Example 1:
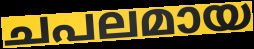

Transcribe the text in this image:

ചപലമായ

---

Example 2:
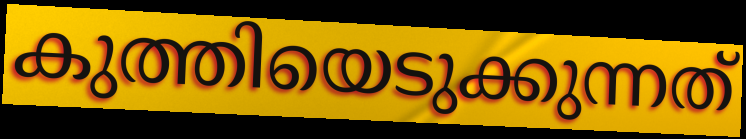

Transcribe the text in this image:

കുത്തിയെടുക്കുന്നത്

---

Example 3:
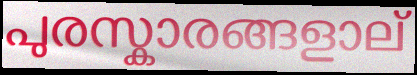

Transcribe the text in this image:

പുരസ്കാരങ്ങളാല്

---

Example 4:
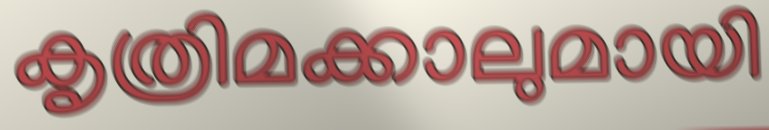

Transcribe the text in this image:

കൃത്രിമക്കാലുമായി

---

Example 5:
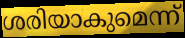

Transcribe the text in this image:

ശരിയാകുമെന്ന്